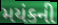
મયંકની